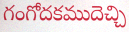
గంగోదకముదెచ్చి